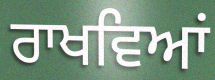
ਰਾਖਵਿਆਂ